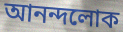
আনন্দলোক